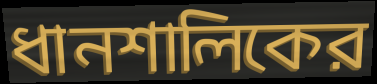
ধানশালিকের